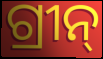
ଗ୍ରୀନ୍